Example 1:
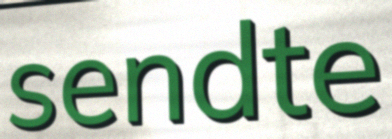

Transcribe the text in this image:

sendte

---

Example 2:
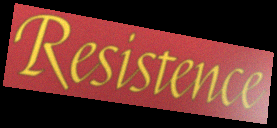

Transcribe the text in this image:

Resistence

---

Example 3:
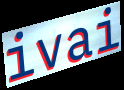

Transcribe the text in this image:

ivai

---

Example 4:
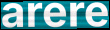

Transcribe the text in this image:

arere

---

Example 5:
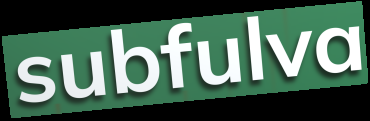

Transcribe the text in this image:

subfulva